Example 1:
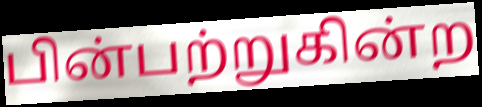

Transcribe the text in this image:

பின்பற்றுகின்ற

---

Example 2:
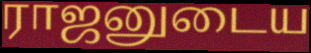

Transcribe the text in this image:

ராஜனுடைய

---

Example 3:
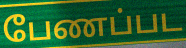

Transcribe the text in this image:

பேணப்பட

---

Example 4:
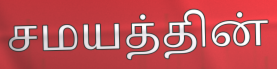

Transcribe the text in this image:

சமயத்தின்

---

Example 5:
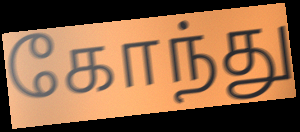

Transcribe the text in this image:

கோந்து